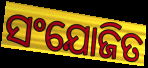
ସଂଯୋଜିତ